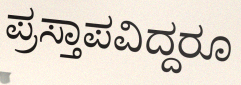
ಪ್ರಸ್ತಾಪವಿದ್ದರೂ